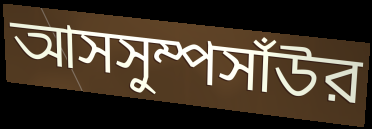
আসসুম্পসাঁউর